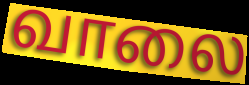
வாலை